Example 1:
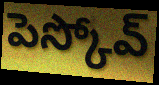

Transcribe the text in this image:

పెస్కోవ్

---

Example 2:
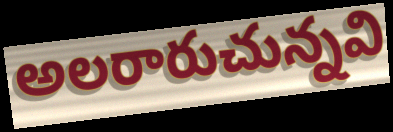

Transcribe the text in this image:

అలరారుచున్నవి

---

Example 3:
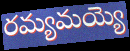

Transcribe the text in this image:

రమ్యమయ్యె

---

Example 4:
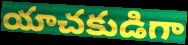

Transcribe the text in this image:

యాచకుడిగా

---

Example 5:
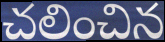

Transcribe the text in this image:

చలించిన